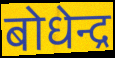
बोधेन्द्र